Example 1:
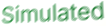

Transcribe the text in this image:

Simulated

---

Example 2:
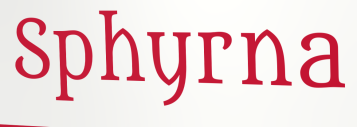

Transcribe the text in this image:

Sphyrna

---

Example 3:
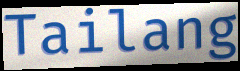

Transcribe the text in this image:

Tailang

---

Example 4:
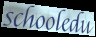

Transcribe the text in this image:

schooledu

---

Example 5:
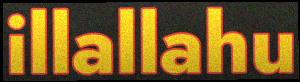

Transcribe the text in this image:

illallahu